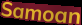
Samoan